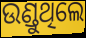
ଉଣ୍ଡୁଥିଲେ